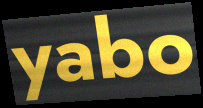
yabo